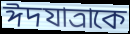
ঈদযাত্রাকে